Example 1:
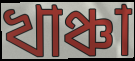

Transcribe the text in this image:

খাঞ্চা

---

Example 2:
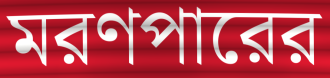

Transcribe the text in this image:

মরণপারের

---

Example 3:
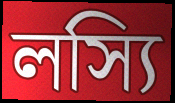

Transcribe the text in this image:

লস্যি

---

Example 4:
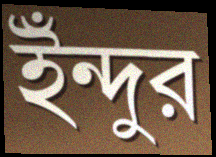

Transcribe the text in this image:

ইঁন্দুর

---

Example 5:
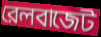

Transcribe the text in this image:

রেলবাজেট